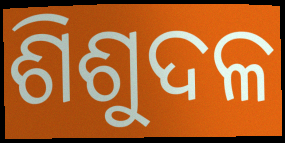
ଶିଶୁଦଳ